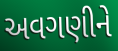
અવગણીને